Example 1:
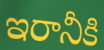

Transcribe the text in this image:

ఇరానీకి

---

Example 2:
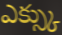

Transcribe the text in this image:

ఎక్స్కు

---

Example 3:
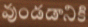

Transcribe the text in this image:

వుండడానికి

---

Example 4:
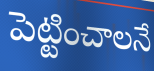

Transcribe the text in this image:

పెట్టించాలనే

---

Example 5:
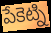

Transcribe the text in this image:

పేకెట్ని